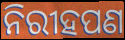
ନିରୀହପଣ